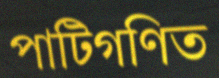
পাটিগণিত